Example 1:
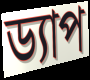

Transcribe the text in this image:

ড্যাপ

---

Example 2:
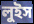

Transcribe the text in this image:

লুইস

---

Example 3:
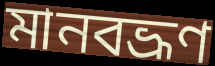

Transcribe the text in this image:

মানবভ্রূণ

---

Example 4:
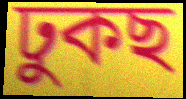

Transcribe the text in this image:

ঢুকছ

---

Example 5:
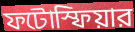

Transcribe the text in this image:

ফটোস্ফিয়ার